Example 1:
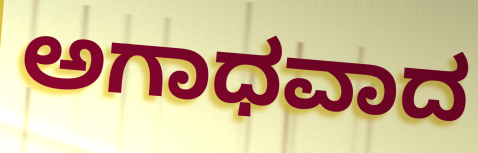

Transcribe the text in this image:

ಅಗಾಧವಾದ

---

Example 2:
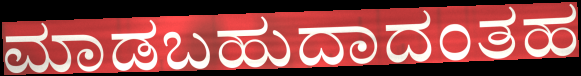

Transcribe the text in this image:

ಮಾಡಬಹುದಾದಂತಹ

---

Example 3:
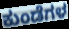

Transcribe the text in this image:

ಕುಂಡೆಗಳ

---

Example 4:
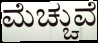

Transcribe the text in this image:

ಮೆಚ್ಚುವೆ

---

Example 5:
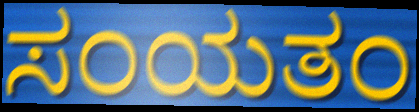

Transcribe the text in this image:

ಸಂಯತಂ